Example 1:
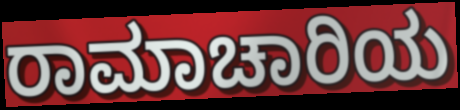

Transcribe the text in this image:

ರಾಮಾಚಾರಿಯ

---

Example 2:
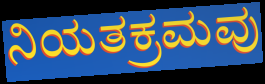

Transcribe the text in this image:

ನಿಯತಕ್ರಮವು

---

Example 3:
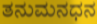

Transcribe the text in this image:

ತನುಮನಧನ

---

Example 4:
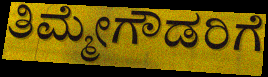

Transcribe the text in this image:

ತಿಮ್ಮೇಗೌಡರಿಗೆ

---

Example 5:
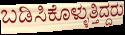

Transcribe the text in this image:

ಬಡಿಸಿಕೊಳ್ಳುತ್ತಿದ್ದರು